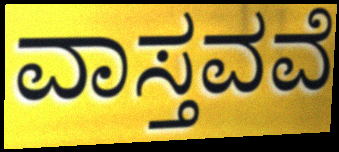
ವಾಸ್ತವವೆ